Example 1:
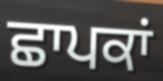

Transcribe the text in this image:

ਛਾਪਕਾਂ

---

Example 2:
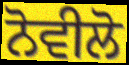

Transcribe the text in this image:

ਨੋਵੀਲੋ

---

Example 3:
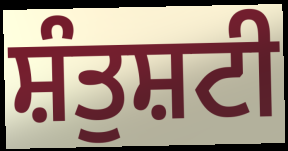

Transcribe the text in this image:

ਸ਼ੰਤੁਸ਼ਟੀ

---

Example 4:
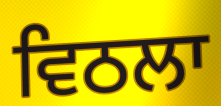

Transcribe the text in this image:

ਵਿਠਲਾ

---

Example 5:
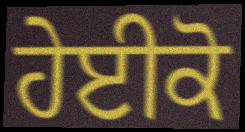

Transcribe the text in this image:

ਹੇਈਕੋ